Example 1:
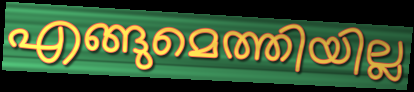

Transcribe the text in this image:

എങ്ങുമെത്തിയില്ല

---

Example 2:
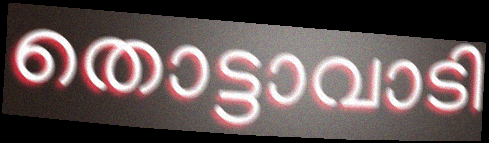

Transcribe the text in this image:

തൊട്ടാവാടി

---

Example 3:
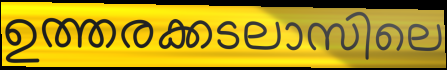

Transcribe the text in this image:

ഉത്തരക്കടലാസിലെ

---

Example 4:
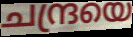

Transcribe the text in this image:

ചന്ദ്രയെ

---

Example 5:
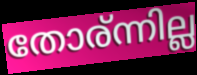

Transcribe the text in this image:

തോര്ന്നില്ല